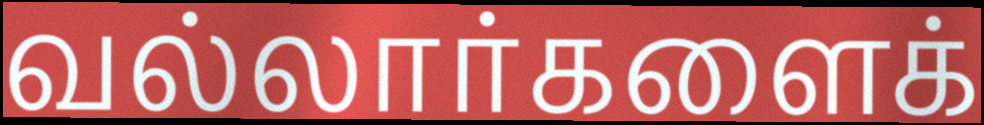
வல்லார்களைக்